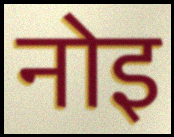
नोइ